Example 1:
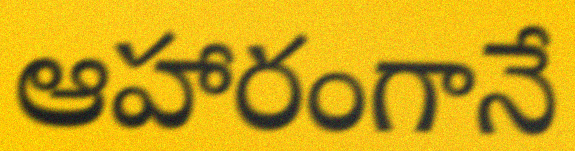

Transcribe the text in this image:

ఆహారంగానే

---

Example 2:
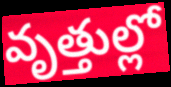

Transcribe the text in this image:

వృత్తుల్లో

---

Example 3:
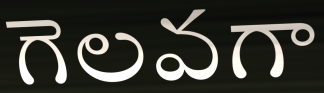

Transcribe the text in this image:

గెలవగా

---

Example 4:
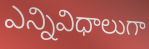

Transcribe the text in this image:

ఎన్నివిధాలుగా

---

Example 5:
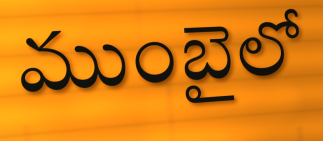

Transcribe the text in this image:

ముంబైలో